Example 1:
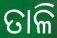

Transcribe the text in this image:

ତାଳି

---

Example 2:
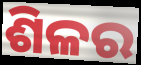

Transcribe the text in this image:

ଶିଳର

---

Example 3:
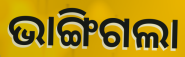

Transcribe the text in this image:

ଭାଙ୍ଗିଗଲା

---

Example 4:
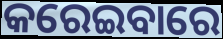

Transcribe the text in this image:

କରେଇବାରେ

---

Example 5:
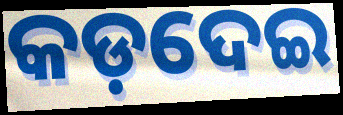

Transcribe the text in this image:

କଡ଼ଦେଇ